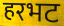
हरभट